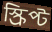
স্ক্ৰিপ্ট